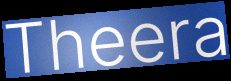
Theera